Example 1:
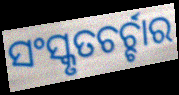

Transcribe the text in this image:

ସଂସ୍କୃତଚର୍ଚ୍ଚାର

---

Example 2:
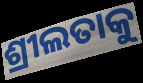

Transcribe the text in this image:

ଶ୍ରୀଲତାକୁ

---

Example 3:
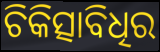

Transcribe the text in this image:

ଚିକିତ୍ସାବିଧିର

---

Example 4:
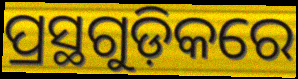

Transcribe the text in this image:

ପ୍ରସ୍ଥଗୁଡ଼ିକରେ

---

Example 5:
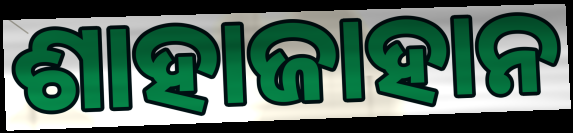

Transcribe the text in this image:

ଶାହାଜାହାନ